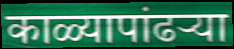
काळ्यापांढऱ्या